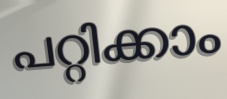
പറ്റിക്കാം